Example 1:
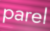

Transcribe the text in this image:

parel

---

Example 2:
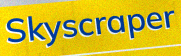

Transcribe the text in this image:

Skyscraper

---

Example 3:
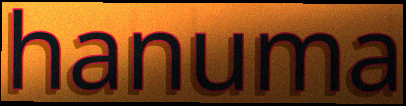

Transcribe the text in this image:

hanuma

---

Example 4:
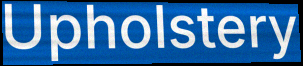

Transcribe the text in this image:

Upholstery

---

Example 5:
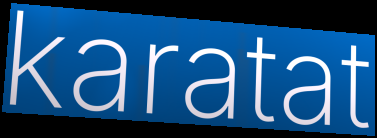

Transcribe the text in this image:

karatat